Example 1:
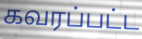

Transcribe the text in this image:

கவரப்பட்ட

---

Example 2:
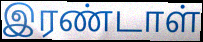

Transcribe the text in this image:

இரண்டாள்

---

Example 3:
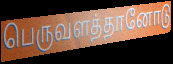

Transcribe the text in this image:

பெருவளத்தானோடு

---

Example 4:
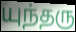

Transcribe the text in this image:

யுந்தரு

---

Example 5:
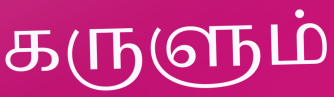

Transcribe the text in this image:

கருளும்